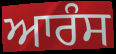
ਆਰੰਸ